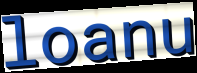
loanu